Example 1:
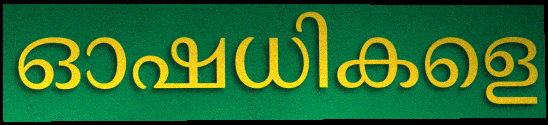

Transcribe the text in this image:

ഓഷധികളെ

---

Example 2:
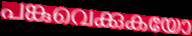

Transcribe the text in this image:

പങ്കുവെക്കുകയോ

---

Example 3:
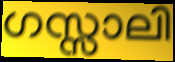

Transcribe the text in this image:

ഗസ്സാലി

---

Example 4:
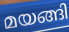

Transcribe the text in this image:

മയങ്ങി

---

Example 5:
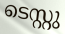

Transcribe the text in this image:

ടെസ്റ്റു